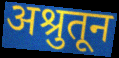
अश्रुतून